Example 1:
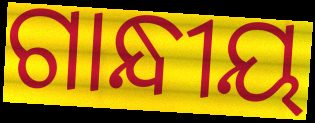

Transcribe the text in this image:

ଗାନ୍ଧୀୟ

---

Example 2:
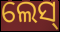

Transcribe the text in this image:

ଲେସ୍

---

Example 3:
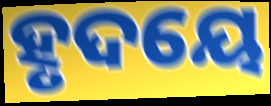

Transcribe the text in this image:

ହୃଦୟେ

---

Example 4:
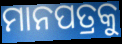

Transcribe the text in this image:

ମାନପତ୍ରକୁ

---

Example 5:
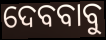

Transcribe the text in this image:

ଦେବବାବୁ